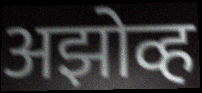
अझोव्ह